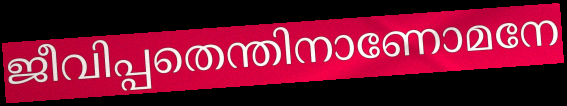
ജീവിപ്പതെന്തിനാണോമനേ